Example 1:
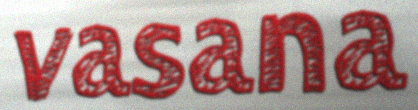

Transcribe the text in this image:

vasana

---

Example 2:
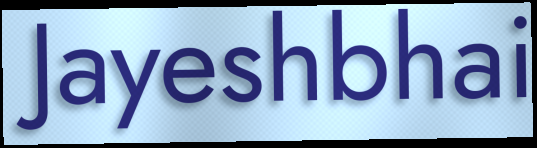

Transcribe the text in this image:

Jayeshbhai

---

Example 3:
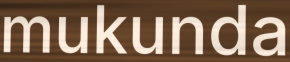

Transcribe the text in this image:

mukunda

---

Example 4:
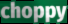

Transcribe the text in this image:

choppy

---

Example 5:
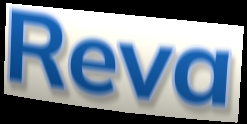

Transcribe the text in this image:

Reva